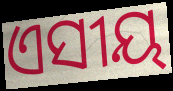
ଏସୀୟ